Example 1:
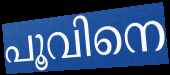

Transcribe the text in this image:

പൂവിനെ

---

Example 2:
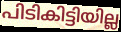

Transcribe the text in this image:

പിടികിട്ടിയില്ല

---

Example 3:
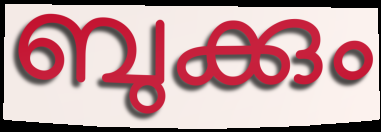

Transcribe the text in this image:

ബുക്കും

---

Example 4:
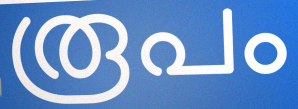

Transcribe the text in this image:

രൂപം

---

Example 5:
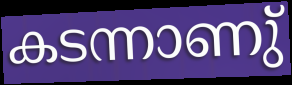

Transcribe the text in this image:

കടന്നാണു്